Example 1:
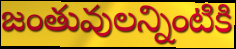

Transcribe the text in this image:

జంతువులన్నింటికి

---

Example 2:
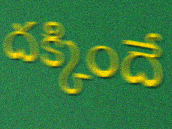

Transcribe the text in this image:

దక్కిందే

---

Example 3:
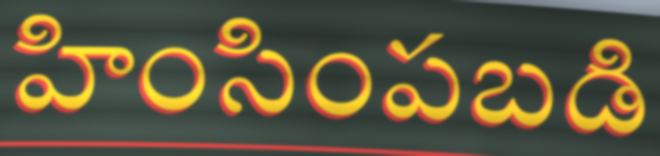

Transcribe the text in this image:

హింసింపబడి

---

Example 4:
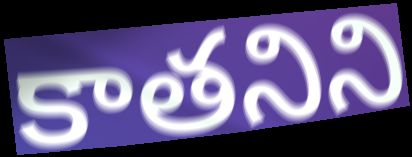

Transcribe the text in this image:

కాతనిని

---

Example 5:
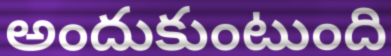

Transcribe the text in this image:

అందుకుంటుంది